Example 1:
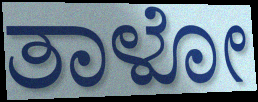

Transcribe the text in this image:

ತಾಳೋ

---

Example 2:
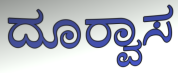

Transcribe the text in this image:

ದೂರ‍್ವಾಸ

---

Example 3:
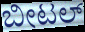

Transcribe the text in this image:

ಬೀಟಲ್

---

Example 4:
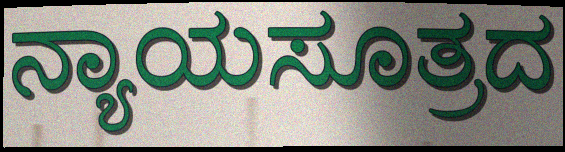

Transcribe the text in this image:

ನ್ಯಾಯಸೂತ್ರದ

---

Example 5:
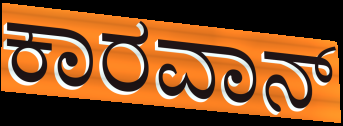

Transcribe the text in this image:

ಕಾರವಾನ್